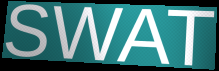
SWAT